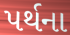
પર્થના